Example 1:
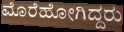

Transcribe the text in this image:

ಮೊರೆಹೋಗಿದ್ದರು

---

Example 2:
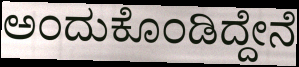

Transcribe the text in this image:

ಅಂದುಕೊಂಡಿದ್ದೇನೆ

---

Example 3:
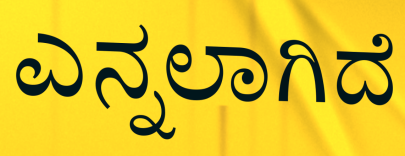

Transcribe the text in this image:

ಎನ್ನಲಾಗಿದೆ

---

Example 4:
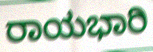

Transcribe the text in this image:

ರಾಯಭಾರಿ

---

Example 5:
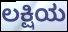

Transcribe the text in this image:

ಲಕ್ಷಿಯ